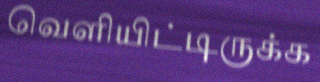
வெளியிட்டிருக்க